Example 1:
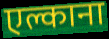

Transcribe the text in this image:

एल्काना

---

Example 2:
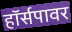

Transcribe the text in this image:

हॉर्सपावर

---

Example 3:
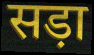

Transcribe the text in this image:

सड़ा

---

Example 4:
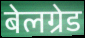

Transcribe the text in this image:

बेलग्रेड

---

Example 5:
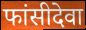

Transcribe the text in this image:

फांसीदेवा